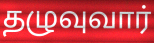
தழுவுவார்